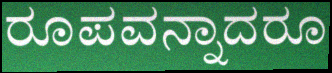
ರೂಪವನ್ನಾದರೂ